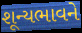
શૂન્યભાવને